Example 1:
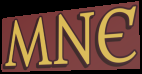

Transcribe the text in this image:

MNE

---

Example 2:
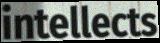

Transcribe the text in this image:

intellects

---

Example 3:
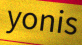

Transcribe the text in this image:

yonis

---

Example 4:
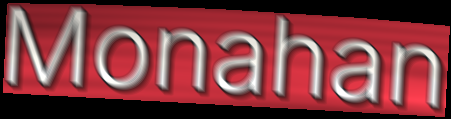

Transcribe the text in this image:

Monahan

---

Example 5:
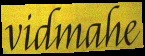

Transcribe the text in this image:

vidmahe